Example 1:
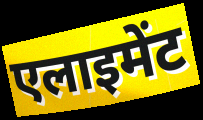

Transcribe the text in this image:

एलाइमेंट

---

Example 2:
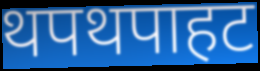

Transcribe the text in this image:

थपथपाहट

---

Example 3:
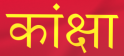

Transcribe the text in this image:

कांक्षा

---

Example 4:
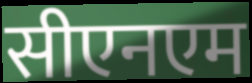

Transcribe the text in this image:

सीएनएम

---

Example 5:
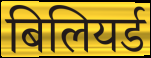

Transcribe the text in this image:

बिलियर्ड